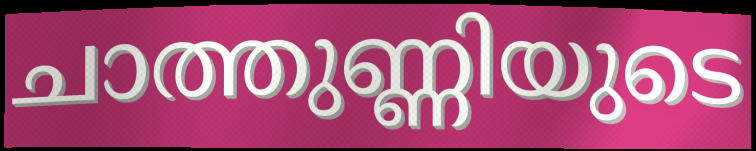
ചാത്തുണ്ണിയുടെ